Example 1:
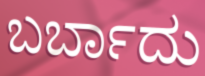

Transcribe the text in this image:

ಬರ್ಬಾದು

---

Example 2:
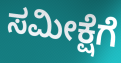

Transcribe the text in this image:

ಸಮೀಕ್ಷೆಗೆ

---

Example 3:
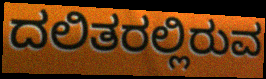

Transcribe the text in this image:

ದಲಿತರಲ್ಲಿರುವ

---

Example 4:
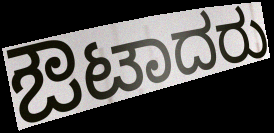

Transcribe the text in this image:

ಔಟಾದರು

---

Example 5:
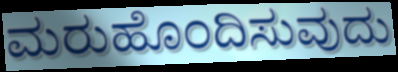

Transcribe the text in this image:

ಮರುಹೊಂದಿಸುವುದು